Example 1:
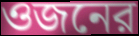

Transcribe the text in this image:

ওজনের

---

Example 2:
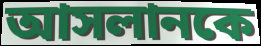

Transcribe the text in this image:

আসলানকে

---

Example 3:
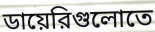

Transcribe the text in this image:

ডায়েরিগুলোতে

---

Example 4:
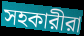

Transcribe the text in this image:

সহকারীরা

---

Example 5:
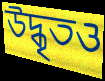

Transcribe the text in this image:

উদ্ধৃতও